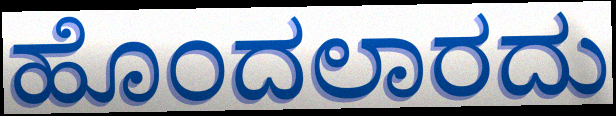
ಹೊಂದಲಾರದು